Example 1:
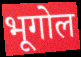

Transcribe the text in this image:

भूगोल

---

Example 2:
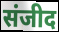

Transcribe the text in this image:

संजीद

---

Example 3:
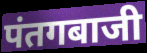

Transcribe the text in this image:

पंतगबाजी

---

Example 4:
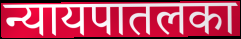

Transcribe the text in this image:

न्यायपातलका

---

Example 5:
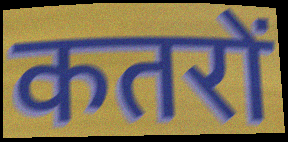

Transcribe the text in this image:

कतरों